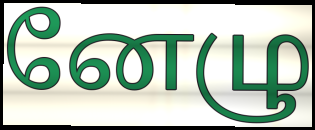
னேழு